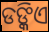
ଡଙ୍କିଏ